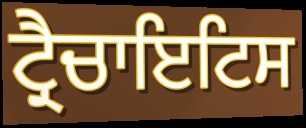
ਟ੍ਰੈਚਾਇਟਿਸ